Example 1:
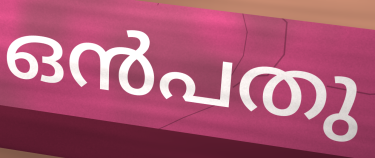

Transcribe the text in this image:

ഒൻപതു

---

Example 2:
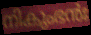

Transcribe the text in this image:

നികുംഭൻഃ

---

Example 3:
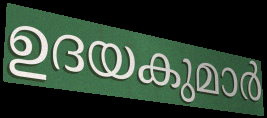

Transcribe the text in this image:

ഉദയകുമാർ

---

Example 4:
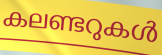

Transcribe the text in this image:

കലണ്ടറുകൾ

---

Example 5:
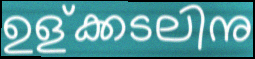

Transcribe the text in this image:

ഉള്ക്കടലിനു